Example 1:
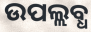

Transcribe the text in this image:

ଉପଲ୍ଲବ୍ଧ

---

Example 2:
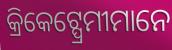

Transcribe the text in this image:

କ୍ରିକେଟ୍ପ୍ରେମୀମାନେ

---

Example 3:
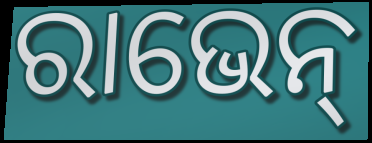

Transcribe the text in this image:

ରାଭେନ୍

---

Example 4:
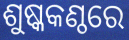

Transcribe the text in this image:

ଶୁଷ୍କକଣ୍ଠରେ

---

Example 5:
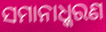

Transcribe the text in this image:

ସମାନାଧ୍କରଣ